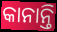
କାନାନ୍ତି